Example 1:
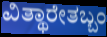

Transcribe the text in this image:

ವಿತ್ಥಾರೇತಬ್ಬಂ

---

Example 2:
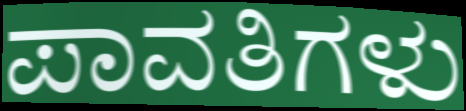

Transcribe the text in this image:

ಪಾವತಿಗಳು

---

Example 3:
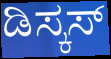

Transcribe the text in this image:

ಡಿಸ್ಕಸ್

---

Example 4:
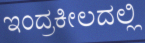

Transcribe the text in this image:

ಇಂದ್ರಕೀಲದಲ್ಲಿ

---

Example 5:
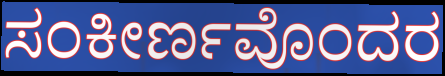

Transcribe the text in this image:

ಸಂಕೀರ್ಣವೊಂದರ